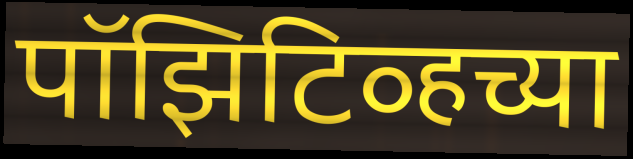
पॉझिटिव्हच्या